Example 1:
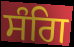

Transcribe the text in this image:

ਸੰਗਿ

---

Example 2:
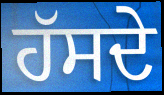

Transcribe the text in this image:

ਹੱਸਦੇ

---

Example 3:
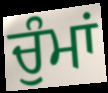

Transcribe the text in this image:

ਚੁੰਮਾਂ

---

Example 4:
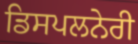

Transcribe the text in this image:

ਡਿਸਪਲਨੇਰੀ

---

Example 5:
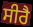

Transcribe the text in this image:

ਸੀਰੈ